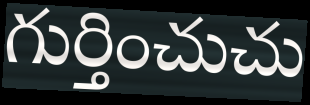
గుర్తించుచు